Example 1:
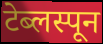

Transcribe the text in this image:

टेब्लस्पून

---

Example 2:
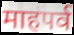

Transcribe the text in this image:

माहपर्व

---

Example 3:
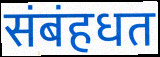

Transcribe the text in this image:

संबंहधत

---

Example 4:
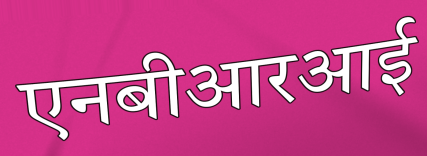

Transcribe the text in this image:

एनबीआरआई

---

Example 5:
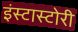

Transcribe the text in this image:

इंस्टास्टोरी